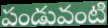
పండువంటి